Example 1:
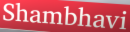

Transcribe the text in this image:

Shambhavi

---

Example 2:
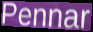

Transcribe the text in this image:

Pennar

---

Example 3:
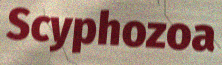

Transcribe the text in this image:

Scyphozoa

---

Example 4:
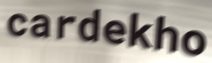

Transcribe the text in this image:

cardekho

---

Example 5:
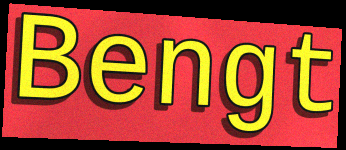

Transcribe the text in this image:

Bengt